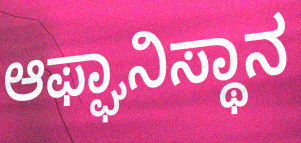
ಆಫ್ಘಾನಿಸ್ಥಾನ